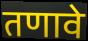
तणावे